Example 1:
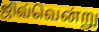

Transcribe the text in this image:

ஜிவ்வென்று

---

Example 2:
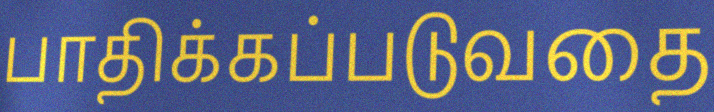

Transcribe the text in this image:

பாதிக்கப்படுவதை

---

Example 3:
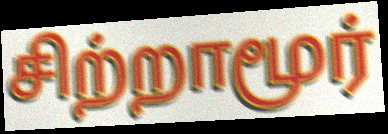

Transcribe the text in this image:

சிற்றாமூர்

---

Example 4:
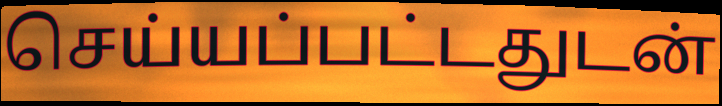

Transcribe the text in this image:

செய்யப்பட்டதுடன்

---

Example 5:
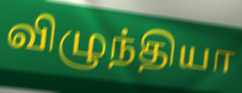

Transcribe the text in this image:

விழுந்தியா